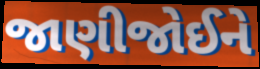
જાણીજોઈને